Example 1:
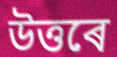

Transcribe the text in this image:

উত্তৰে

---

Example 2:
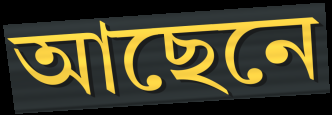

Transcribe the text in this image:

আছেনে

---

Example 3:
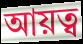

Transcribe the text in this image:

আয়ত্ব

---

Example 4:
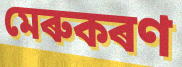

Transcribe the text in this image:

মেৰুকৰণ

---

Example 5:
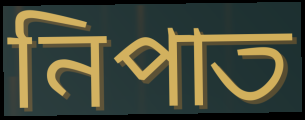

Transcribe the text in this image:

নিপাত